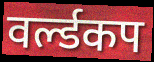
वर्ल्डकप